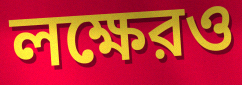
লক্ষেরও